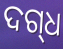
ଦଗ୍‌ଧ